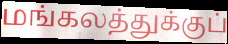
மங்கலத்துக்குப்